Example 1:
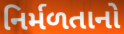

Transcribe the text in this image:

નિર્મળતાનો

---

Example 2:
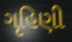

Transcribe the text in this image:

ગૃહિણી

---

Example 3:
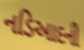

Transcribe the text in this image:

નડિઆદની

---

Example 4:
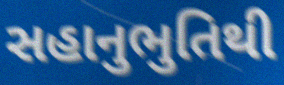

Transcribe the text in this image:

સહાનુભુતિથી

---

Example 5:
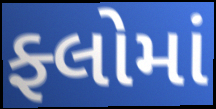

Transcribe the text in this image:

ફ્લોમાં